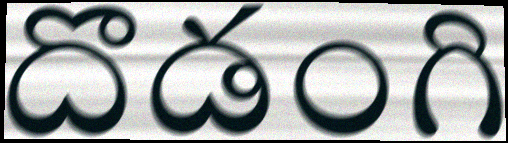
దొడంగి